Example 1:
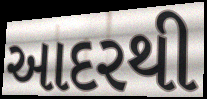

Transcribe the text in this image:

આદરથી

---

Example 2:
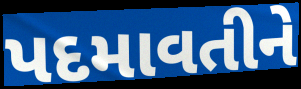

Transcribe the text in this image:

પદમાવતીને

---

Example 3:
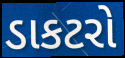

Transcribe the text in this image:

ડાકટરો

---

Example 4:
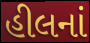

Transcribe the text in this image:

હીલનાં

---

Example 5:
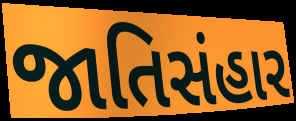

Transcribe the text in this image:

જાતિસંહાર